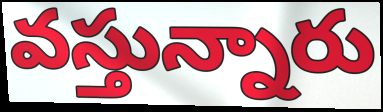
వస్తున్నారు